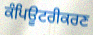
ਕੰਪਿਊਟਰੀਕਰਣ